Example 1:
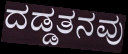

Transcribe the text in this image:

ದಡ್ಡತನವು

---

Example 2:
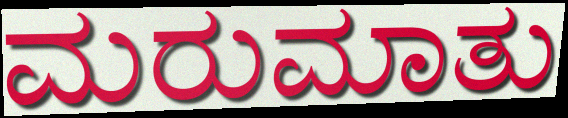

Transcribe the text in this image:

ಮರುಮಾತು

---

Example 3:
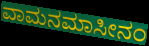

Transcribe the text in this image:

ವಾಮನಮಾಸೀನಂ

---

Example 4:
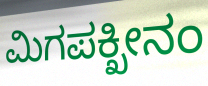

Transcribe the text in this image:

ಮಿಗಪಕ್ಖೀನಂ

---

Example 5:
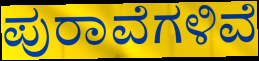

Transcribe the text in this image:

ಪುರಾವೆಗಳಿವೆ